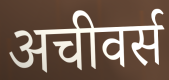
अचीवर्स